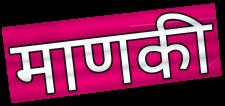
माणकी